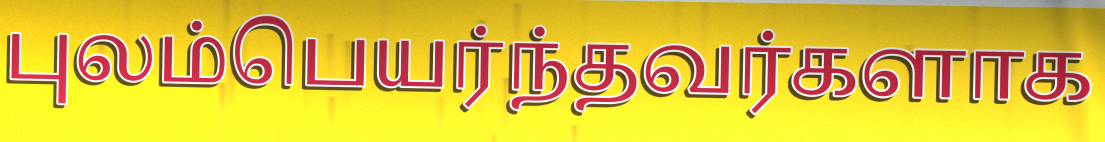
புலம்பெயர்ந்தவர்களாக